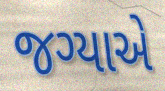
જગ્યાએ